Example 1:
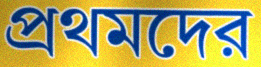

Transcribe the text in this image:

প্রথমদের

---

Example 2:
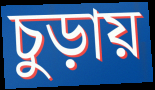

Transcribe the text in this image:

চুড়ায়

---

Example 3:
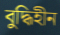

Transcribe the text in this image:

বুদ্ধিহীন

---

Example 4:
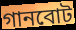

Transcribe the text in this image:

গানবোট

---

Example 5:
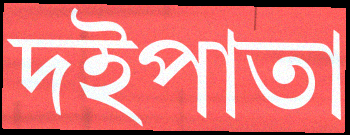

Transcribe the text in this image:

দইপাতা